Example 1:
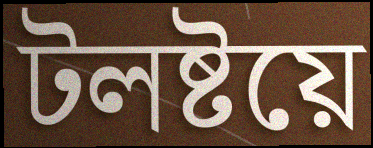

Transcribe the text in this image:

টলষ্টয়ে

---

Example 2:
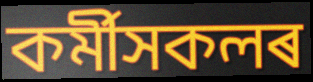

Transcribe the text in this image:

কৰ্মীসকলৰ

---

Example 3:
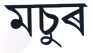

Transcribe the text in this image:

মচুৰ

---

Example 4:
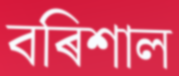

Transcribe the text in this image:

বৰিশাল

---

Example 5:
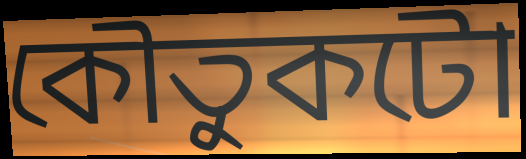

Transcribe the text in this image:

কৌতুকটো